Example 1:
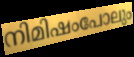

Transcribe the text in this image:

നിമിഷംപോലും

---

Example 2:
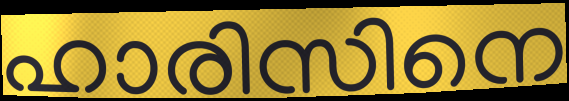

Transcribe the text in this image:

ഹാരിസിനെ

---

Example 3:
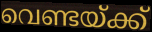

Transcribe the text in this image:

വെണ്ടയ്ക്ക്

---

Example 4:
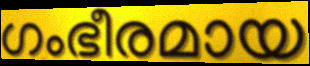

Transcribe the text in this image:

ഗംഭീരമായ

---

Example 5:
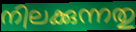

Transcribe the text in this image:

നിലക്കുന്നതു